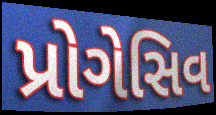
પ્રોગેસિવ